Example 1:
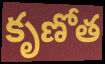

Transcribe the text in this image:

కృణోత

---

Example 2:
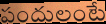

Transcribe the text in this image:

పందులంటే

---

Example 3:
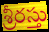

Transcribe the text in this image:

శ్రీరస్తు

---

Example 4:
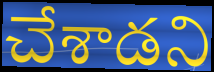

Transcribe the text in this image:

చేశాడని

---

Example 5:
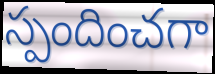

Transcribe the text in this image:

స్పందించగా